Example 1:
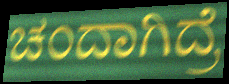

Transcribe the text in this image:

ಚಂದಾಗಿದ್ರೆ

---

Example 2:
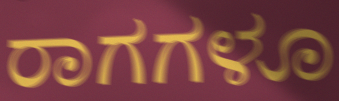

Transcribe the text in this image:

ರಾಗಗಳೂ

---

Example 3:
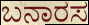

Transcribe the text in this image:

ಬನಾರಸ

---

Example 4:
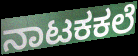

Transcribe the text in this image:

ನಾಟಕಕಲೆ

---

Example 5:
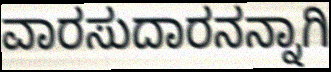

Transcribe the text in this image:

ವಾರಸುದಾರನನ್ನಾಗಿ